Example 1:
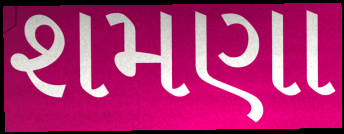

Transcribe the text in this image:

શમણા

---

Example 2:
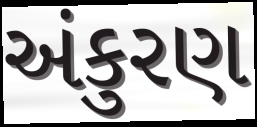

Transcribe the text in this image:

અંકુરણ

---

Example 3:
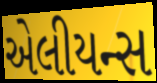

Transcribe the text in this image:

એલીયન્સ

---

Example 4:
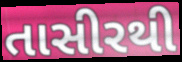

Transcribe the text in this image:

તાસીરથી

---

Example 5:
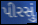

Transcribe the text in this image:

પીરસું